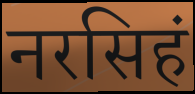
नरसिहं